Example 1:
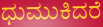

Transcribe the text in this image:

ಧುಮುಕಿದರೆ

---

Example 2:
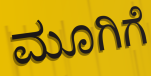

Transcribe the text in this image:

ಮೂಗಿಗೆ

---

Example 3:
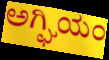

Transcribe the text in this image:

ಅಗ್ಘಿಯಂ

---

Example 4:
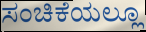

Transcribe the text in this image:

ಸಂಚಿಕೆಯಲ್ಲೂ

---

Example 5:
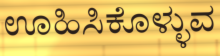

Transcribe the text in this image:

ಊಹಿಸಿಕೊಳ್ಳುವ